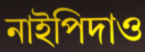
নাইপিদাও